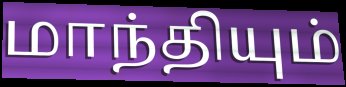
மாந்தியும்